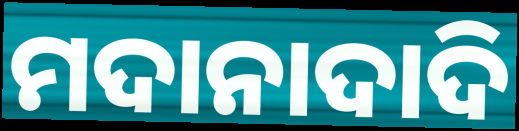
ମଦାନାଦାଦି